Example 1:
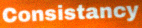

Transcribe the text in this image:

Consistancy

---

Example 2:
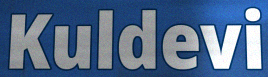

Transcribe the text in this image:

Kuldevi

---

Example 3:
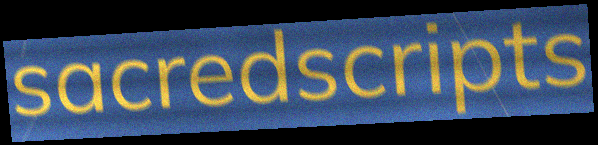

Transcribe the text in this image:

sacredscripts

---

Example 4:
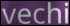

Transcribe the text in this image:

vechi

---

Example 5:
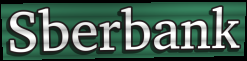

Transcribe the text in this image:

Sberbank